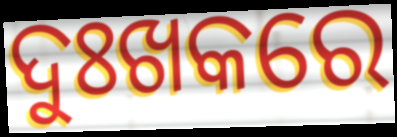
ଦୁଃଖକରେ